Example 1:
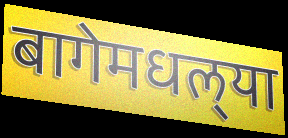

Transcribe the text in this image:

बागेमधल्या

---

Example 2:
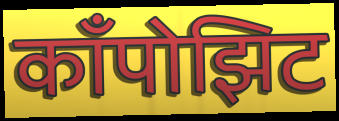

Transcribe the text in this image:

काँपोझिट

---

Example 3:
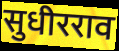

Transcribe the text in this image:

सुधीरराव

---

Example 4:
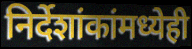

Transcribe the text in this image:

निर्देशांकांमध्येही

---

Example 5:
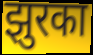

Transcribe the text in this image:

झुरका